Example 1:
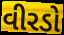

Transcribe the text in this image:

વીરડો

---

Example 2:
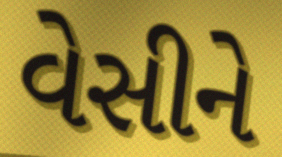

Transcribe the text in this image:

વેસીને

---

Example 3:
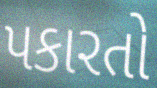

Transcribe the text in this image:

પકારતો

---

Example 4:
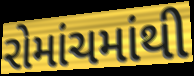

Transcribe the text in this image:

રોમાંચમાંથી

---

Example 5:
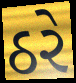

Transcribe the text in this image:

ઠરે